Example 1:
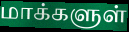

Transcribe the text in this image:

மாக்களுள்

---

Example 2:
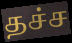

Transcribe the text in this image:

தச்ச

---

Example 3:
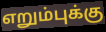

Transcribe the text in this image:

எறும்புக்கு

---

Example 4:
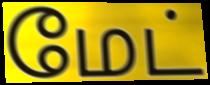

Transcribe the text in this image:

மேட்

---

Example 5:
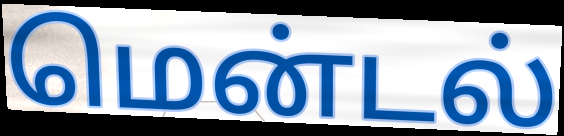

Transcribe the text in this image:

மென்டல்